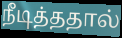
நீடித்ததால்